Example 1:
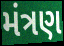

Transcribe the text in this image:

મંત્રણ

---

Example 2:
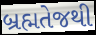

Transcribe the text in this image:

બ્રહ્મતેજથી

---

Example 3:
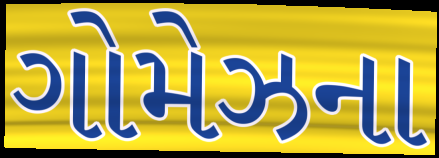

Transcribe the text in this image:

ગોમેઝના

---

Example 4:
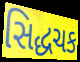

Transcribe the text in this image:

સિદ્ધચક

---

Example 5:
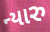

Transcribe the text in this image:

ન્યારુ